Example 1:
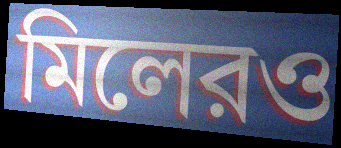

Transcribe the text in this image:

মিলেরও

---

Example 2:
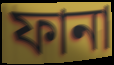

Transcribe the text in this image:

ফানা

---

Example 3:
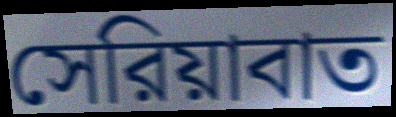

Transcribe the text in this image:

সেরিয়াবাত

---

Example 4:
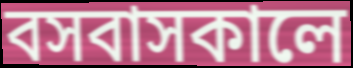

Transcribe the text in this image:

বসবাসকালে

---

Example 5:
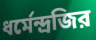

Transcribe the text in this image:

ধর্মেন্দ্রজির